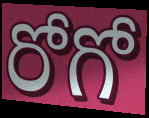
రోగో